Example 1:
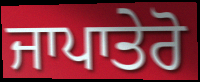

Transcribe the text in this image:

ਜਾਪਾਤੇਰੋ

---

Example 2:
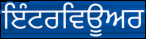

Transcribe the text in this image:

ਇੰਟਰਵਿਊਅਰ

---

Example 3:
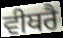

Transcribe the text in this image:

ਵੀਥਰੈ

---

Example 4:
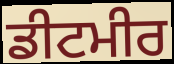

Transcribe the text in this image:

ਡੀਟਮੀਰ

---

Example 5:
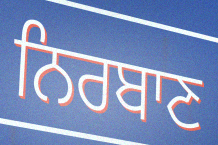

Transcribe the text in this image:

ਨਿਰਬਾਣ